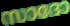
സാദോ